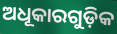
ଅଧୂକାରଗୁଡ଼ିକ